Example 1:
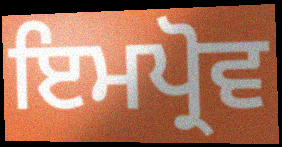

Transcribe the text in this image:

ਇਮਪ੍ਰੋਵ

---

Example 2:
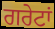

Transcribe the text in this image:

ਗਰੇਟਾਂ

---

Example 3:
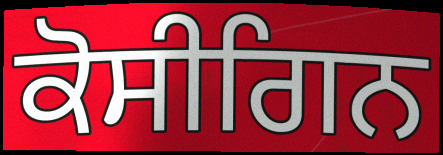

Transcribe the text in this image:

ਕੋਸੀਗਿਨ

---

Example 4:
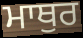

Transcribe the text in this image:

ਮਾਥੁਰ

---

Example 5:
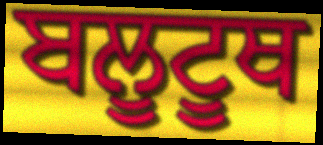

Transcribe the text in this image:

ਬਲੂਟੂਥ